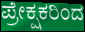
ಪ್ರೇಕ್ಷಕರಿಂದ